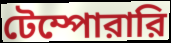
টেম্পোরারি